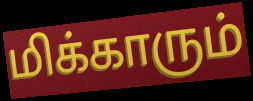
மிக்காரும்